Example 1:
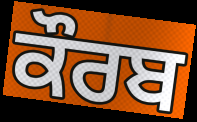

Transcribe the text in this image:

ਕੌਰਬ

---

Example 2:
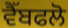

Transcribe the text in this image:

ਵੈੱਬਫਲੋ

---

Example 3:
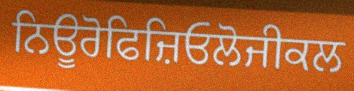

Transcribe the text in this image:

ਨਿਊਰੋਫਿਜ਼ਿਓਲੋਜੀਕਲ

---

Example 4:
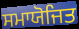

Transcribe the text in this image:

ਸਮਾਯੋਜਿਤ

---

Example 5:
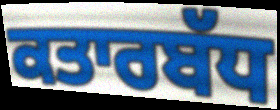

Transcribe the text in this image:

ਕਤਾਰਬੱਧ